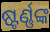
ଷ୍ଟର୍ଣ୍ଣଙ୍କ